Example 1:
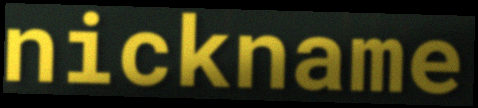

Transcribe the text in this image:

nickname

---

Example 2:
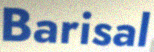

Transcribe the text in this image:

Barisal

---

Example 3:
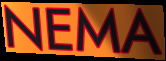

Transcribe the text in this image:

NEMA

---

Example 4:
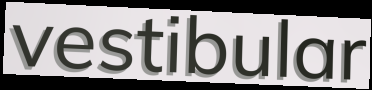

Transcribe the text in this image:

vestibular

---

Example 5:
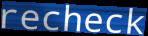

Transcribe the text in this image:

recheck